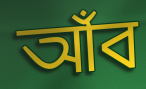
আঁব